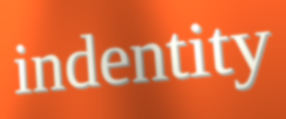
indentity